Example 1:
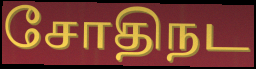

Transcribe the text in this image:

சோதிநட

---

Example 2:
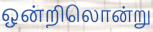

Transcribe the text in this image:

ஒன்றிலொன்று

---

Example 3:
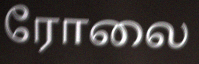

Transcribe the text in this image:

ரோலை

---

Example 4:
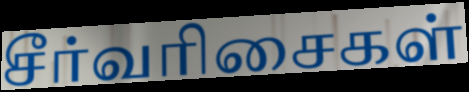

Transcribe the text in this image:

சீர்வரிசைகள்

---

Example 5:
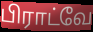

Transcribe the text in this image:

பிராட்வே